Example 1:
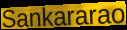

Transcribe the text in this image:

Sankararao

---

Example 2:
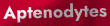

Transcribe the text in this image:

Aptenodytes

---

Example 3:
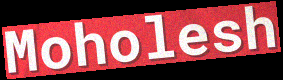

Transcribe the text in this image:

Moholesh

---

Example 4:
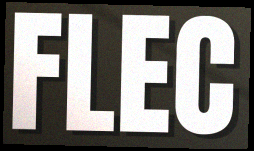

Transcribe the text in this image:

FLEC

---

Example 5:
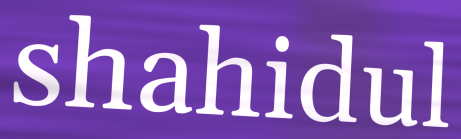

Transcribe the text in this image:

shahidul